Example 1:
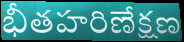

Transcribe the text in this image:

భీతహరిణేక్షణ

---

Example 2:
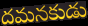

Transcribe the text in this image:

దమనకుడు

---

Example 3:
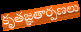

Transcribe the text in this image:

కృతజ్ఞతార్పణలు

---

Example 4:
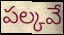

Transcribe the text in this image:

పల్కవే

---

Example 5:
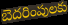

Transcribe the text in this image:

బెదరింపులకు